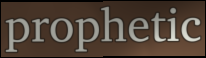
prophetic